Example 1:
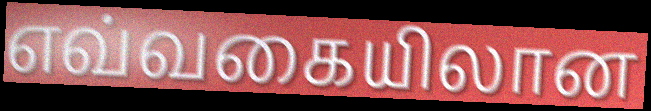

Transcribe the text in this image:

எவ்வகையிலான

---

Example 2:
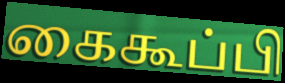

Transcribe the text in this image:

கைகூப்பி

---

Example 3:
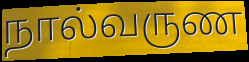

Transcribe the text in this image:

நால்வருண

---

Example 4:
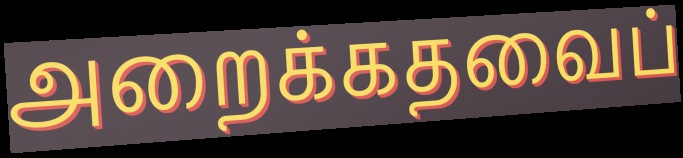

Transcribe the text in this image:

அறைக்கதவைப்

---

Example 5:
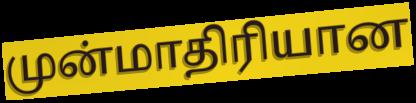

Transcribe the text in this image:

முன்மாதிரியான